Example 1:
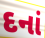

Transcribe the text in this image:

દનાં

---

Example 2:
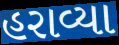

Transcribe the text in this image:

હરાવ્યા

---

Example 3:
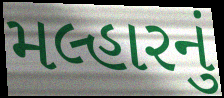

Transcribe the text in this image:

મલ્હારનું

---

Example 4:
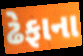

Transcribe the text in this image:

ઢેફાના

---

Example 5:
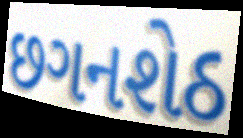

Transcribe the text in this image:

છગનશેઠ